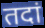
तदां